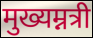
मुख्यम्नत्री